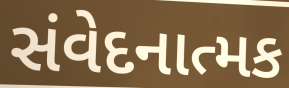
સંવેદનાત્મક